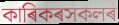
কাৰিকৰসকলৰ